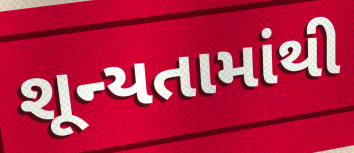
શૂન્યતામાંથી